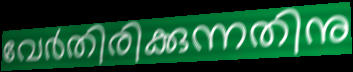
വേർതിരിക്കുന്നതിനു